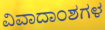
ವಿವಾದಾಂಶಗಳ